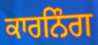
ਕਾਰਨਿੰਗ